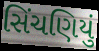
સિંચણિયું